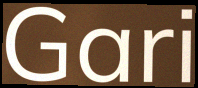
Gari